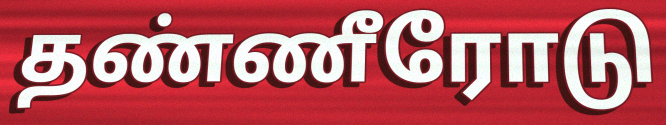
தண்ணீரோடு